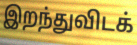
இறந்துவிடக்